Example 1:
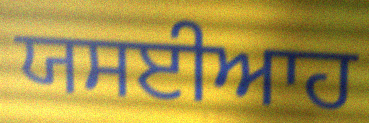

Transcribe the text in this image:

ਯਸਈਆਹ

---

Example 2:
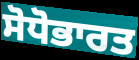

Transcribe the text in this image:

ਸੋਧੋਭਾਰਤ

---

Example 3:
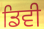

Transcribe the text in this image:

ਡਿਵੀ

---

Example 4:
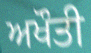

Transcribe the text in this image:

ਅਖੌਤੀ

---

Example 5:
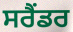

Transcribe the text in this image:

ਸਰੈਂਡਰ